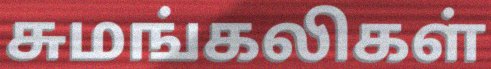
சுமங்கலிகள்